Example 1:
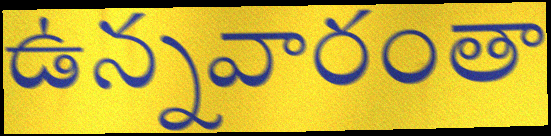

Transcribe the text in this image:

ఉన్నవారంతా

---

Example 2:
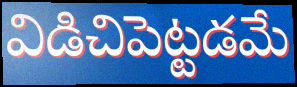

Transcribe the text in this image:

విడిచిపెట్టడమే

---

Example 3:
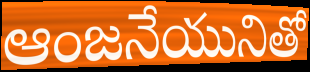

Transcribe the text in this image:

ఆంజనేయునితో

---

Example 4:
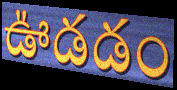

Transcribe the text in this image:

ఊడడం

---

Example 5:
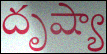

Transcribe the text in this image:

దృష్యా